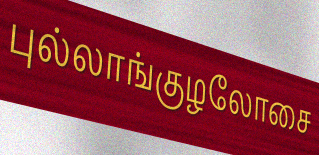
புல்லாங்குழலோசை